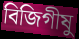
বিজিগীষু